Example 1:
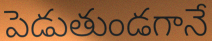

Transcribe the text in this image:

పెడుతుండగానే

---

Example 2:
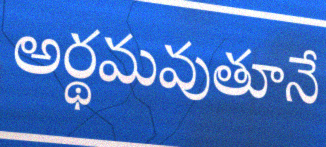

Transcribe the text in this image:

అర్థమవుతూనే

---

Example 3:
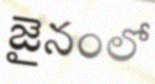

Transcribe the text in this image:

జైనంలో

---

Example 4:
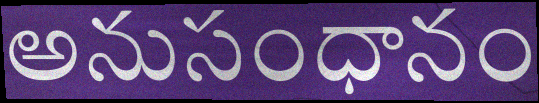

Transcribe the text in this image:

అనుసంధానం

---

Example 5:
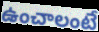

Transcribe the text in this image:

ఉంచాలంటే